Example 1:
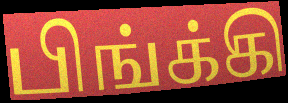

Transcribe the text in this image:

பிங்க்கி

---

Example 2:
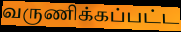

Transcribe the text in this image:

வருணிக்கப்பட்ட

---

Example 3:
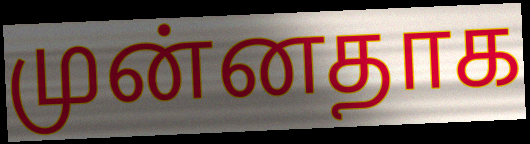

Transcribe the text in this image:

முன்னதாக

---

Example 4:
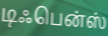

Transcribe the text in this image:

டிஃபென்ஸ்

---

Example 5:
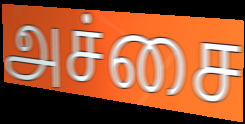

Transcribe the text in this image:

அச்சை